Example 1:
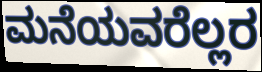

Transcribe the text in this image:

ಮನೆಯವರೆಲ್ಲರ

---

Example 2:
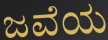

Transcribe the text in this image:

ಜವೆಯ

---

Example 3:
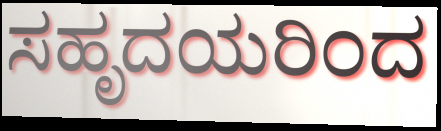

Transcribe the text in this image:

ಸಹೃದಯರಿಂದ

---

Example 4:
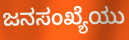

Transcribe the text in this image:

ಜನಸಂಖ್ಯೆಯು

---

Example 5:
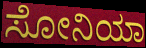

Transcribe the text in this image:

ಸೋನಿಯಾ